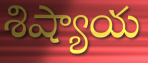
శిష్యాయ